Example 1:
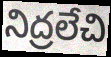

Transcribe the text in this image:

నిద్రలేచి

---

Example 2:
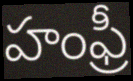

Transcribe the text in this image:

హంఫ్రీ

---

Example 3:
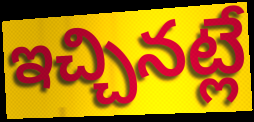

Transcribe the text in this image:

ఇచ్చినట్లే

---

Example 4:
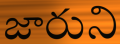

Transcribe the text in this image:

జారుని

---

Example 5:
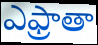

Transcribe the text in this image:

ఎఫ్రాతా